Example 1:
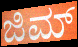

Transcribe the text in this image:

ಜಿಮ್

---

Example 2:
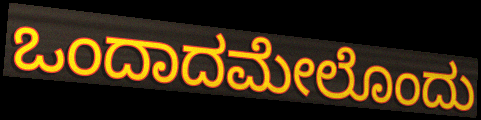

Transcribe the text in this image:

ಒಂದಾದಮೇಲೊಂದು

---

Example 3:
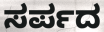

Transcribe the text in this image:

ಸರ್ಪದ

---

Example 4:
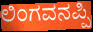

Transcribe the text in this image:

ಲಿಂಗವನಪ್ಪಿ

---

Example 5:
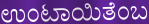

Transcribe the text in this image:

ಉಂಟಾಯಿತೆಂಬ